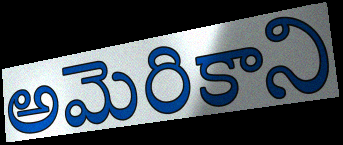
అమెరికాని